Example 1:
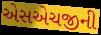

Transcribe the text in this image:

એસએચજીની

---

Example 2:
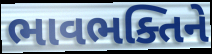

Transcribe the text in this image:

ભાવભક્તિને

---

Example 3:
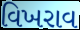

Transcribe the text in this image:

વિખરાવ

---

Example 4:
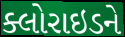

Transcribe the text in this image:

ક્લોરાઇડને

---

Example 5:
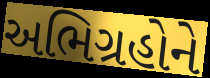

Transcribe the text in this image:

અભિગ્રહોને